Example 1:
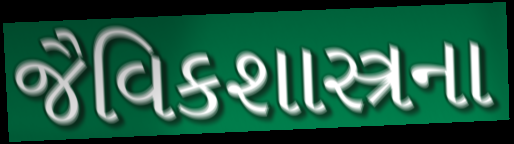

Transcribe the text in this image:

જૈવિકશાસ્ત્રના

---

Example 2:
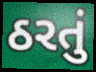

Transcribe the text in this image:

ઠરતું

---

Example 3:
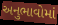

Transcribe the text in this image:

અનુભાવોમાં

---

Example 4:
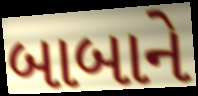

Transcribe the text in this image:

બાબાને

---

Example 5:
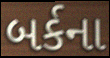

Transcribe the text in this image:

બર્કના